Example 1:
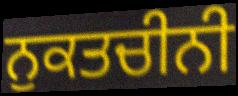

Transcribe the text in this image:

ਨੁਕਤਚੀਨੀ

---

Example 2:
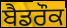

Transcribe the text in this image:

ਬੈਡਰੌਕ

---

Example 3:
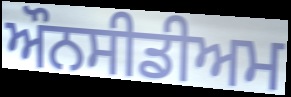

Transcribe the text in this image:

ਔਨਸੀਡੀਅਮ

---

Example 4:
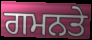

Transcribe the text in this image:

ਗਮਨਤੇ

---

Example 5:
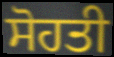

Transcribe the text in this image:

ਸੋਹਤੀ